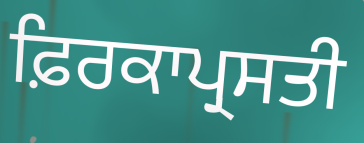
ਫ਼ਿਰਕਾਪ੍ਰਸਤੀ